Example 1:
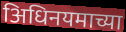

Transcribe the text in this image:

अिधिनयमाच्या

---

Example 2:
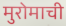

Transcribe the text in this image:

मुरोमाची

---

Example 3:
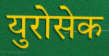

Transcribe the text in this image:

युरोसेक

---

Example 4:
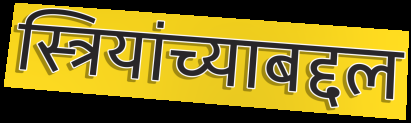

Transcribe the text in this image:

स्त्रियांच्याबद्दल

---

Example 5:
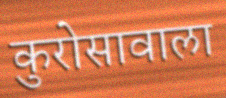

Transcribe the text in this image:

कुरोसावाला